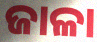
ଜାଳା